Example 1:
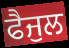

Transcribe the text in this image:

ਫੈਜੁਲ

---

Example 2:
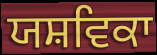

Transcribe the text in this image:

ਯਸ਼ਵਿਕਾ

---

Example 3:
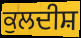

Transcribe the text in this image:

ਕੁਲਦੀਸ਼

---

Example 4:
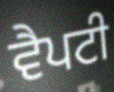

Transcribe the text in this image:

ਵੈਪਟੀ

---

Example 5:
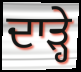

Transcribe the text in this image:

ਦਾੜ੍ਹੇ